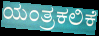
ಯಂತ್ರಕಲಿಕೆ